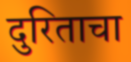
दुरिताचा